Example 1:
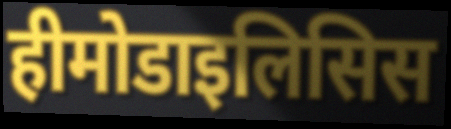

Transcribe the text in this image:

हीमोडाइलिसिस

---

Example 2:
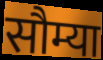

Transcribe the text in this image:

सौम्या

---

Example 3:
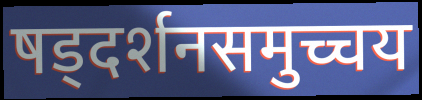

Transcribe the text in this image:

षड्दर्शनसमुच्चय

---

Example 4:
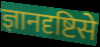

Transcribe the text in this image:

ज्ञानदृष्टिसे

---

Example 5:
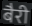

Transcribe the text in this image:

बैरी